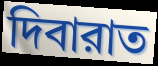
দিবারাত